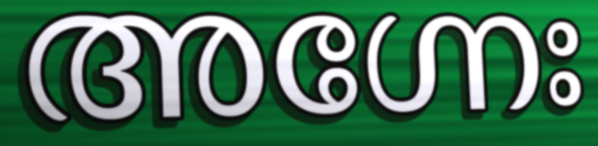
അഗ്നേഃ